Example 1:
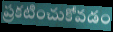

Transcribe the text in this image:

ప్రకటించుకోవడం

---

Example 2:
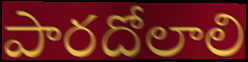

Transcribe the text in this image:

పారదోలాలి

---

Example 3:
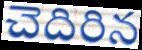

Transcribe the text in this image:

చెదిరిన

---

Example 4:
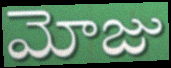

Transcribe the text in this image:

మోజు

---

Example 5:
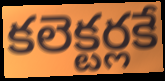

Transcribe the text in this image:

కలెక్టర్లకే